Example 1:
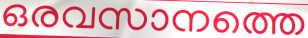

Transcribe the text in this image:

ഒരവസാനത്തെ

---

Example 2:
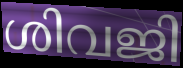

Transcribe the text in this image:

ശിവജി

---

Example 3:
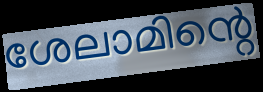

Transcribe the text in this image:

ശേലാമിന്റെ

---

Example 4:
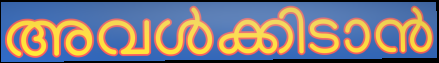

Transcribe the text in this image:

അവൾക്കിടാൻ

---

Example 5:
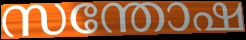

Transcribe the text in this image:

സന്തോഷ